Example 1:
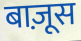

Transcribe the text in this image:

बाज़ूस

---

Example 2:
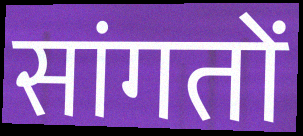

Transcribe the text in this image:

सांगतों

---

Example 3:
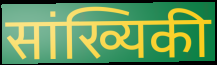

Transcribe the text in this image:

सांख्यिकी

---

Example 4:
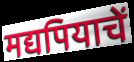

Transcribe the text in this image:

मद्यपियाचें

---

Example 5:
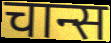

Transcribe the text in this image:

चान्स